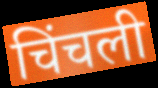
चिंचली